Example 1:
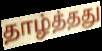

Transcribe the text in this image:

தாழ்த்தது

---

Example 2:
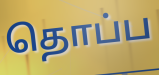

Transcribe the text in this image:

தொப்ப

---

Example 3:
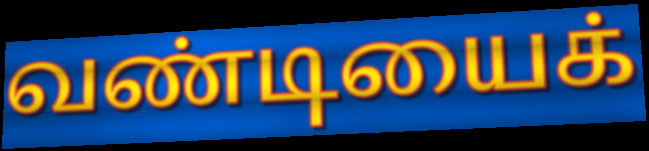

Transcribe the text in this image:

வண்டியைக்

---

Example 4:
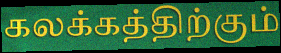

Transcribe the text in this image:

கலக்கத்திற்கும்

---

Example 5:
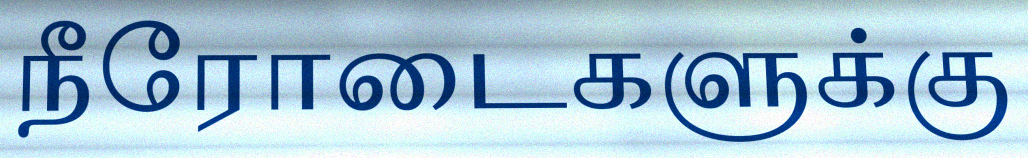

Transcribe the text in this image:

நீரோடைகளுக்கு